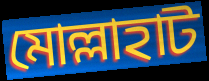
মোল্লাহাট